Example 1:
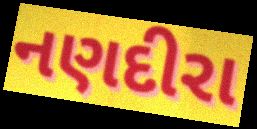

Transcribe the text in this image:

નણદીરા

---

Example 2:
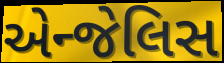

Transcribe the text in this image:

એન્જેલિસ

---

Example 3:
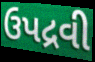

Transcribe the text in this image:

ઉપદ્રવી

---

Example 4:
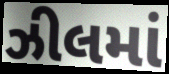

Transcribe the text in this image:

ઝીલમાં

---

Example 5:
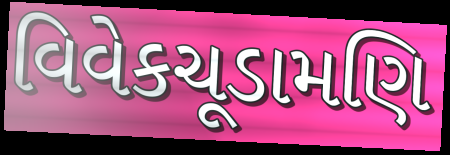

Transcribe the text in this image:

વિવેકચૂડામણિ